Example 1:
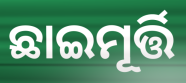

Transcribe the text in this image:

ଛାଇମୂର୍ତ୍ତି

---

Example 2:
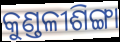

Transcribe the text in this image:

କୁଣ୍ଡଳୀଶିଙ୍ଗା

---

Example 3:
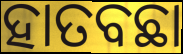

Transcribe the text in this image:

ହାତବଛା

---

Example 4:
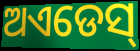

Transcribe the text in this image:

ଅଏଡେସ୍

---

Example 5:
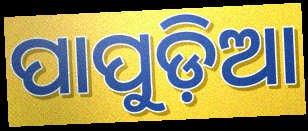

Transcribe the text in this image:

ପାପୁଡ଼ିଆ